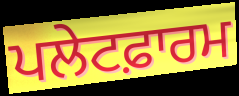
ਪਲੇਟਫ਼ਾਰਮ